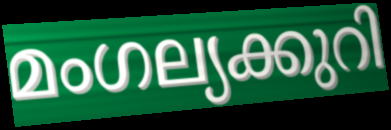
മംഗല്യക്കുറി